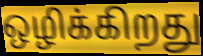
ஒழிக்கிறது